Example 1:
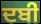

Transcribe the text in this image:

ਦਬੀ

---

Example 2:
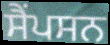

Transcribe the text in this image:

ਸੈਂਪਸਨ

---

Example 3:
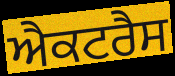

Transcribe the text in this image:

ਐਕਟਰੈਸ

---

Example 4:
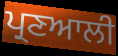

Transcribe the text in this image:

ਪ੍ਰਣਆਲੀ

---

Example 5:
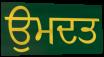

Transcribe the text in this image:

ਉਮਦਤ